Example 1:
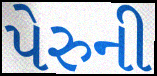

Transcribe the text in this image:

પેરુની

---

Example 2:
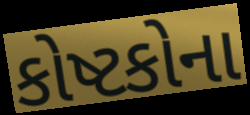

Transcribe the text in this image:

કોષ્ટકોના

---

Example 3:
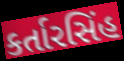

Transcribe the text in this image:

કર્તારસિંહ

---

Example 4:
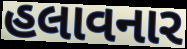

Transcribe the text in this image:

હલાવનાર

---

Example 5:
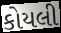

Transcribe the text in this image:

કોયલી